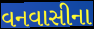
વનવાસીના